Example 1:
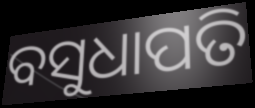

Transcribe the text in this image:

ବସୁଧାପତି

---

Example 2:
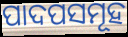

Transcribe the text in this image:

ପାଦପସମୂହ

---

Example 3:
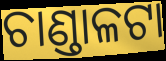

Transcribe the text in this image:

ଚାଣ୍ଡାଳଟା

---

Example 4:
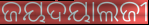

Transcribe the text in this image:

ଜୟଦୟାଲଜୀ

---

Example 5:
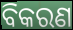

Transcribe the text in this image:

ବିକରଣ